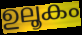
ഉലൂകം